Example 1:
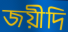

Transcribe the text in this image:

জয়ীদি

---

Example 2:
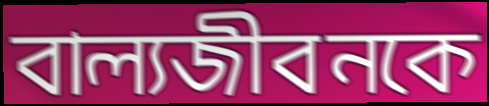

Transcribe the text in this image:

বাল্যজীবনকে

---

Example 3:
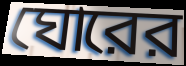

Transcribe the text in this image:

ঘোরের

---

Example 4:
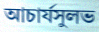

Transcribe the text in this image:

আচার্যসুলভ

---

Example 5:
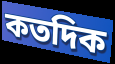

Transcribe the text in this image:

কতদিক